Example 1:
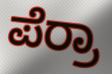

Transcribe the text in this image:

ಪೆರ್ರಾ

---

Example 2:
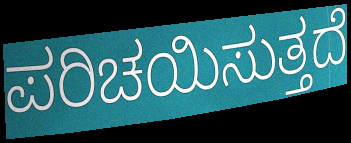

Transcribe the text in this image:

ಪರಿಚಯಿಸುತ್ತದೆ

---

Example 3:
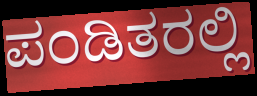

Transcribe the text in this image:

ಪಂಡಿತರಲ್ಲಿ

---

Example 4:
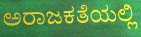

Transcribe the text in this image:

ಅರಾಜಕತೆಯಲ್ಲಿ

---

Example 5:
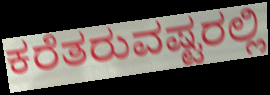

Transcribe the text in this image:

ಕರೆತರುವಷ್ಟರಲ್ಲಿ